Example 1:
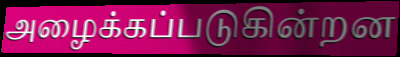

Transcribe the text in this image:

அழைக்கப்படுகின்றன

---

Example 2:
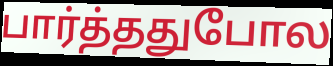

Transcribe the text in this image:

பார்த்ததுபோல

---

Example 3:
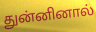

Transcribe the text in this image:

துன்னினால்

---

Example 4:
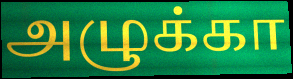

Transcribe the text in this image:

அழுக்கா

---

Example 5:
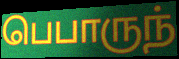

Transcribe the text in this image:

பெபாருந்